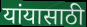
यांयासाठी